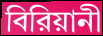
বিরিয়ানী